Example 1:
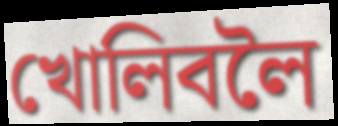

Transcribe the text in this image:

খোলিবলৈ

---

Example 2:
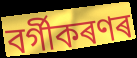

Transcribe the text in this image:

বৰ্গীকৰণৰ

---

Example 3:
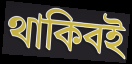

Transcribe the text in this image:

থাকিবই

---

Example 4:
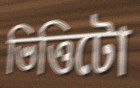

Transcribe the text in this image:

ভিত্তিটো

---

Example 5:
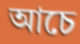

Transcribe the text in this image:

আচে